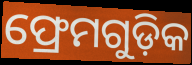
ଫ୍ରେମଗୁଡ଼ିକ